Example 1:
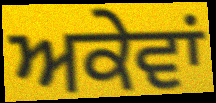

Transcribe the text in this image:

ਅਕੇਵਾਂ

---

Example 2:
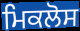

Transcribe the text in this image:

ਮਿਕਲੋਸ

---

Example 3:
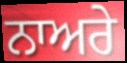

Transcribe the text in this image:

ਨਾਅਰੇ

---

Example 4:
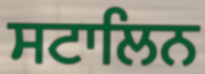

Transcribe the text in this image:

ਸਟਾਲਿਨ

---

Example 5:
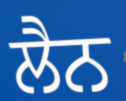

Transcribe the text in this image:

ਲੈਨ